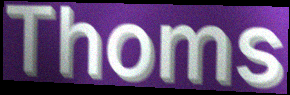
Thoms